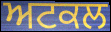
ਅਟਕਲ